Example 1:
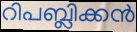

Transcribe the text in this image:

റിപബ്ലിക്കൻ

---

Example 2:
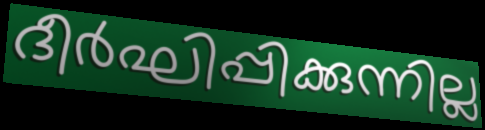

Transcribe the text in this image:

ദീർഘിപ്പിക്കുന്നില്ല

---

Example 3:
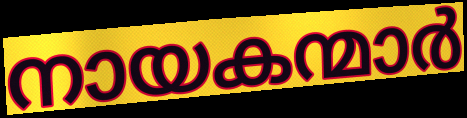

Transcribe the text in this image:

നായകന്മാർ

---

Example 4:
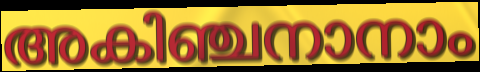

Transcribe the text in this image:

അകിഞ്ചനാനാം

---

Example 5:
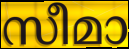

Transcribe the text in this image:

സീമാ